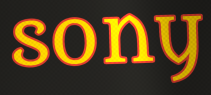
sony